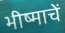
भीष्माचें